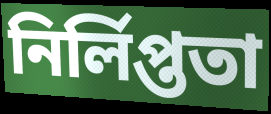
নির্লিপ্ততা